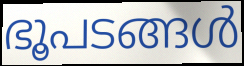
ഭൂപടങ്ങൾ